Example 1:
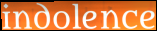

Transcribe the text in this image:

indolence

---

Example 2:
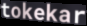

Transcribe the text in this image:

tokekar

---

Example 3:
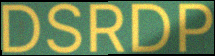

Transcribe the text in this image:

DSRDP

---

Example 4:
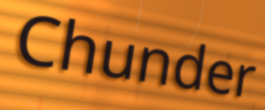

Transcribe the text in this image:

Chunder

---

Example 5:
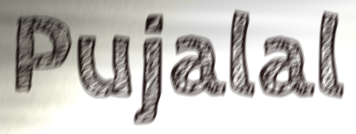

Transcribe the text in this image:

Pujalal